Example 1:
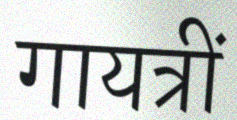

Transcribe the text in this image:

गायत्रीं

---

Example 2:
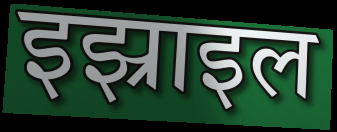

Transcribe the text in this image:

इझ्राइल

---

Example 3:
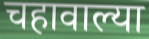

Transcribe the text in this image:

चहावाल्या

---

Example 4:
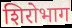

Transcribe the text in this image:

शिरोभाग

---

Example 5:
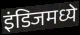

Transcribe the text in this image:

इंडिजमध्ये